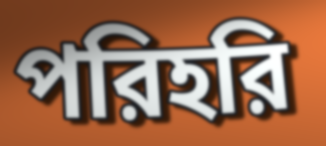
পরিহরি